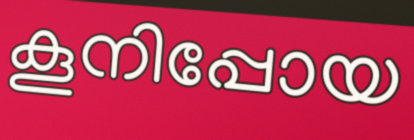
കൂനിപ്പോയ